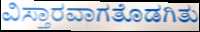
ವಿಸ್ತಾರವಾಗತೊಡಗಿತು